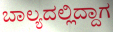
ಬಾಲ್ಯದಲ್ಲಿದ್ದಾಗ